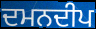
ਦਮਨਦੀਪ